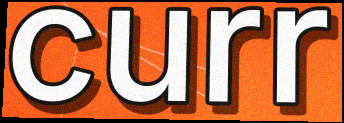
curr